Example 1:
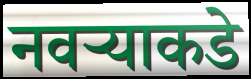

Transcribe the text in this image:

नवऱ्याकडे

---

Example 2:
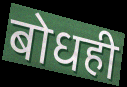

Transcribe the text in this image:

बोधही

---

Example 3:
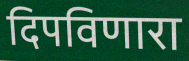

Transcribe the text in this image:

दिपविणारा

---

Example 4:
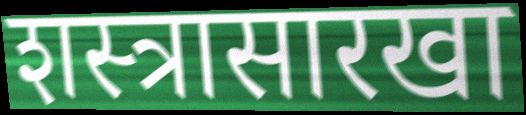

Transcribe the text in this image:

शस्त्रासारखा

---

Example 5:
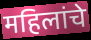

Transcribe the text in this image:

महिलांचे